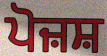
ਪੋਜ਼ਸ਼